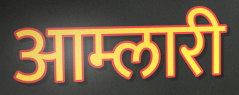
आम्लारी